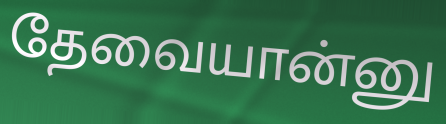
தேவையான்னு